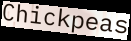
Chickpeas